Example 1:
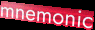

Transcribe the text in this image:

mnemonic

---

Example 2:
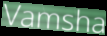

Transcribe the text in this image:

Vamsha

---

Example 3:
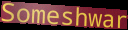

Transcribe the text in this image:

Someshwar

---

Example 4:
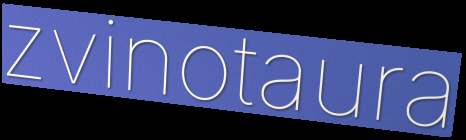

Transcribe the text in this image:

zvinotaura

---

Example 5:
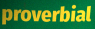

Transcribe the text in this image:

proverbial